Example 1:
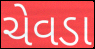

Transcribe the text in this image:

ચેવડા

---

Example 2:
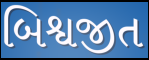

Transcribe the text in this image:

બિશ્વજીત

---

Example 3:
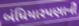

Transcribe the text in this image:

બંધિયારપણાની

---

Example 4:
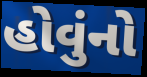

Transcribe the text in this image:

હોવુંનો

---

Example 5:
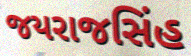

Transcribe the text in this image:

જયરાજસિંહ